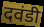
दवंडी